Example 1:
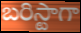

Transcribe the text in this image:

బరిస్టాగా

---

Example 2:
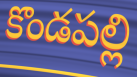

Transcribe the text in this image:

కొండపల్లి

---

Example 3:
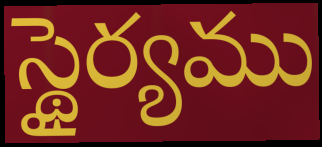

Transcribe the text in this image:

స్థైర్యము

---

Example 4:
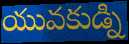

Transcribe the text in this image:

యువకుడ్ని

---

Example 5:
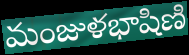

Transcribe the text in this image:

మంజుళభాషిణి